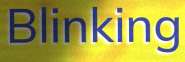
Blinking